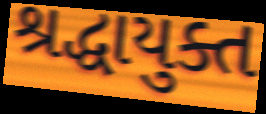
શ્રદ્ધાયુક્ત